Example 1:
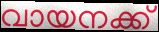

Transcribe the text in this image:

വായനക്ക്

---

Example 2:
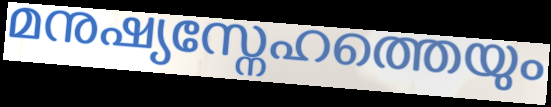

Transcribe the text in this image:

മനുഷ്യസ്നേഹത്തെയും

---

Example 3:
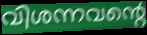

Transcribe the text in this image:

വിശന്നവന്റെ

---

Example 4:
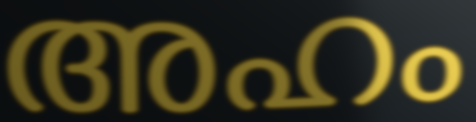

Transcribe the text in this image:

അഹം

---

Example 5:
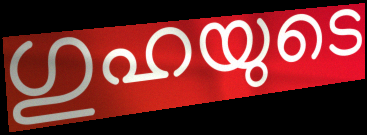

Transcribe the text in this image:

ഗുഹയുടെ